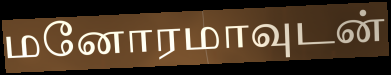
மனோரமாவுடன்